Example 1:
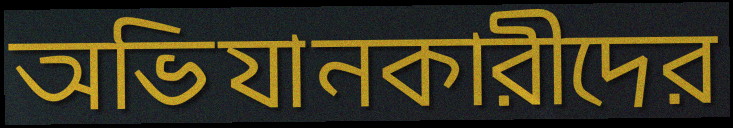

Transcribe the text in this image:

অভিযানকারীদের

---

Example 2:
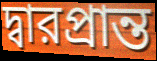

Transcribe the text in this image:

দ্বারপ্রান্ত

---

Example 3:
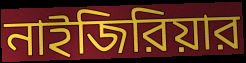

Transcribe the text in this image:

নাইজিরিয়ার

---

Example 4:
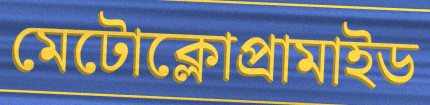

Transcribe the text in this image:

মেটোক্লোপ্রামাইড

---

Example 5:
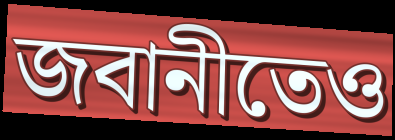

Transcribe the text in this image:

জবানীতেও